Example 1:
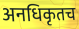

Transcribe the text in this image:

अनधिकृतच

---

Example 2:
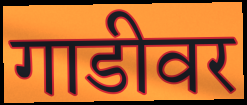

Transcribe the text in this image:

गाडीवर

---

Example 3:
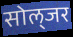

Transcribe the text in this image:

सोल्जर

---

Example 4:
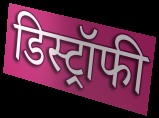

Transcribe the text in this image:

डिस्ट्रॉफी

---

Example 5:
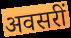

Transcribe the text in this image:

अवसरीं